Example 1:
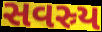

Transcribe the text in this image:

સવસ્ર્ય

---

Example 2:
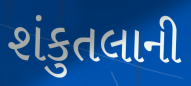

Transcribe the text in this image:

શંકુતલાની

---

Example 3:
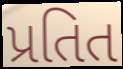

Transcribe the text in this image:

પ્રતિત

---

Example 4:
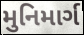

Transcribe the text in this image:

મુનિમાર્ગ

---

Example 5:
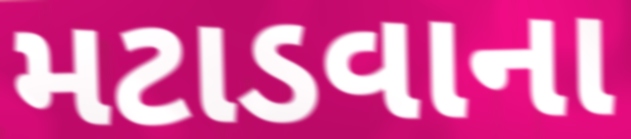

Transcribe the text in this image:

મટાડવાના